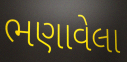
ભણાવેલા